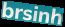
brsinh